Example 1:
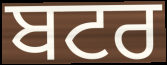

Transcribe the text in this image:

ਬਟਰ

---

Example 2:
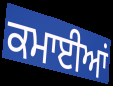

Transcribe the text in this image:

ਕਮਾਈਆਂ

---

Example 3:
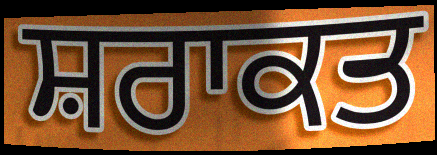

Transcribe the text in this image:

ਸ਼ਰਾਕਤ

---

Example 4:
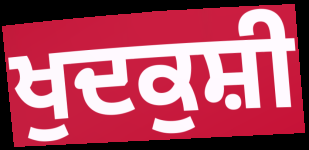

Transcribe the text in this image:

ਖੁਦਕੁਸ਼ੀ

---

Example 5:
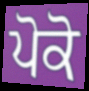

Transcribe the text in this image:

ਪੋਕੋ